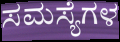
ಸಮಸ್ಯೆಗಳ